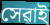
সেৱাই